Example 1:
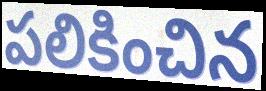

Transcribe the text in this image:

పలికించిన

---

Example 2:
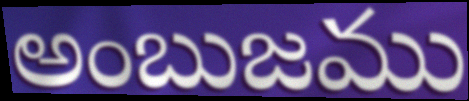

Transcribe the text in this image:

అంబుజము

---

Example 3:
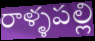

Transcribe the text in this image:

రాళ్ళపల్లి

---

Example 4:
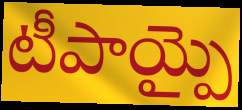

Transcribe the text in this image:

టీపాయ్పై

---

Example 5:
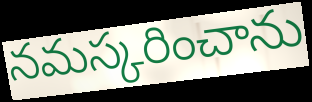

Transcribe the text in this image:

నమస్కరించాను